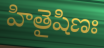
హితైషిణః